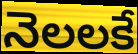
నెలలకే